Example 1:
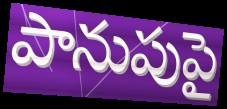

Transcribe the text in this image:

పానుపుపై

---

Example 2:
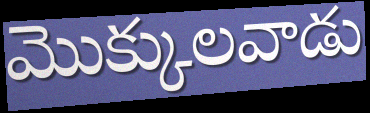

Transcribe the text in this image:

మొక్కులవాడు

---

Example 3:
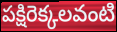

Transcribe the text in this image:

పక్షిరెక్కలవంటి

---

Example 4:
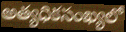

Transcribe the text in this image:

అత్యధికసంఖ్యలో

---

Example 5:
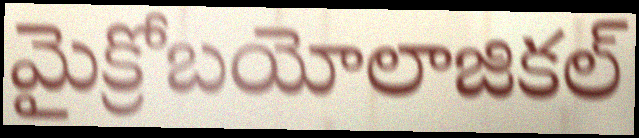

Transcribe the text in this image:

మైక్రోబయోలాజికల్